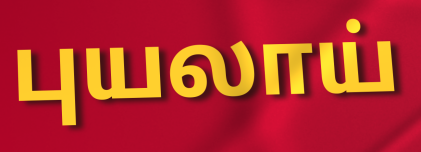
புயலாய்